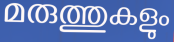
മരുത്തുകളും